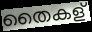
തൈകള്